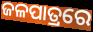
ଜଳପାତ୍ରରେ